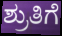
ಶ್ರುತಿಗೆ